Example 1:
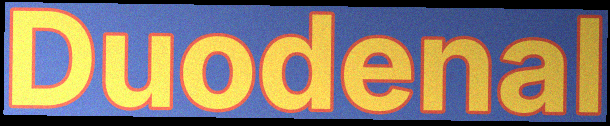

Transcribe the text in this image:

Duodenal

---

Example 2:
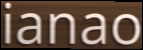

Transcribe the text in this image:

ianao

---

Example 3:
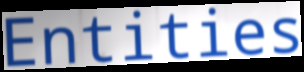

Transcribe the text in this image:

Entities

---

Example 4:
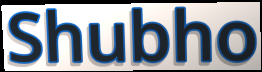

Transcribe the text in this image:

Shubho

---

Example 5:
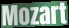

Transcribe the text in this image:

Mozart